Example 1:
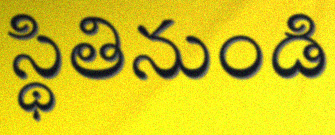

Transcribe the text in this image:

స్థితినుండి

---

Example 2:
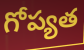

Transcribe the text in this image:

గోప్యత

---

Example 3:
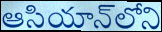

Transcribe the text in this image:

ఆసియాన్‌లోని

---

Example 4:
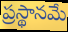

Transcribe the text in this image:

ప్రస్థానమే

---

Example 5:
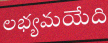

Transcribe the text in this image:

లభ్యమయేది